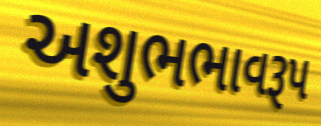
અશુભભાવરૂપ